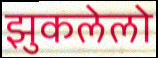
झुकलेलो